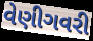
વેણીગવરી